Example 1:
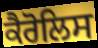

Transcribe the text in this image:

ਕੈਰੋਲਿਸ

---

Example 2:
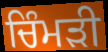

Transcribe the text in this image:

ਚਿੰਮੜੀ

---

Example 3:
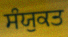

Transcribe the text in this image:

ਸੰਯੁਕਤ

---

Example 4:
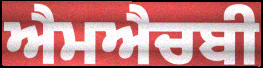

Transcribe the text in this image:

ਐਮਐਚਬੀ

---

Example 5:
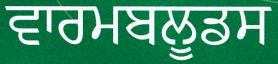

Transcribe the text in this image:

ਵਾਰਮਬਲੂਡਸ